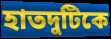
হাতদুটিকে